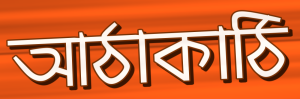
আঠাকাঠি